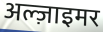
अल्ज़ाइमर